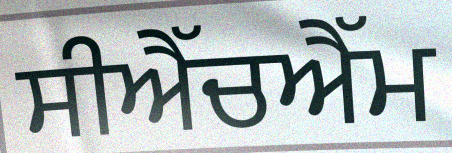
ਸੀਐੱਚਐੱਮ